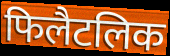
फिलैटलिक